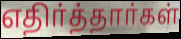
எதிர்த்தார்கள்